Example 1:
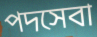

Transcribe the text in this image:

পদসেবা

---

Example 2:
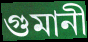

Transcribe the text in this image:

গুমানী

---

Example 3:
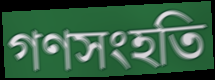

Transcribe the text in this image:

গণসংহতি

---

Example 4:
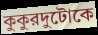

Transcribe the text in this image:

কুকুরদুটোকে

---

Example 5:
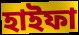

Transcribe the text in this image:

হাইফা